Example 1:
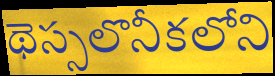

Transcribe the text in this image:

థెస్సలొనీకలోని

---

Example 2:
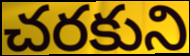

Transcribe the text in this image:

చరకుని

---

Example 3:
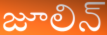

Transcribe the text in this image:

జూలిన్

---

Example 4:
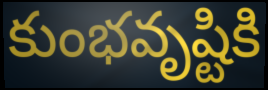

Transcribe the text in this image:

కుంభవృష్టికి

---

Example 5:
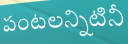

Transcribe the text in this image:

పంటలన్నిటినీ